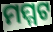
ମମ୍ମଟ